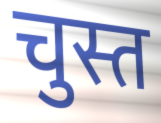
चुस्त